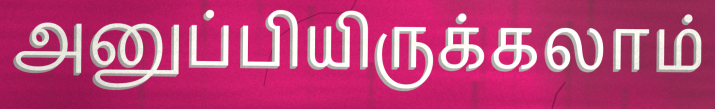
அனுப்பியிருக்கலாம்